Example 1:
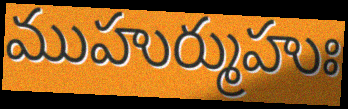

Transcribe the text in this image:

ముహుర్ముహుః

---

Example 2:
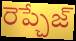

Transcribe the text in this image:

రెప్చేజ్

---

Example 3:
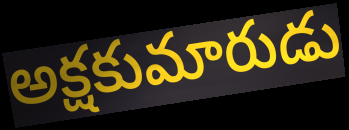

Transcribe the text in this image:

అక్షకుమారుడు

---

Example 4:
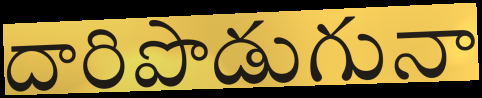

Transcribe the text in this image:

దారిపొడుగునా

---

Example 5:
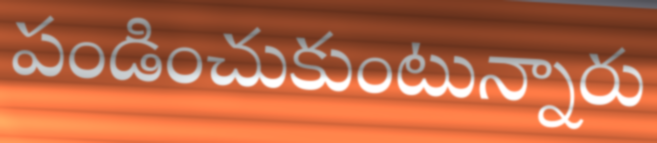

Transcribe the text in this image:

పండించుకుంటున్నారు